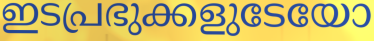
ഇടപ്രഭുക്കളുടേയോ